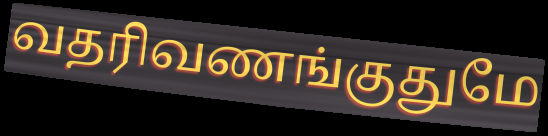
வதரிவணங்குதுமே